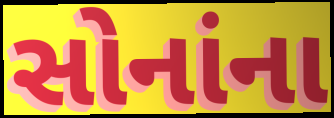
સોનાંના